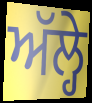
ਅੱਲ੍ਹੇ